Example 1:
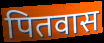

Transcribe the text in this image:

पितवास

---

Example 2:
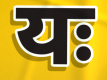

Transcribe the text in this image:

यः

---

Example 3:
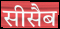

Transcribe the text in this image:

सीसैब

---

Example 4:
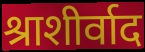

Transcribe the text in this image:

श्राशीर्वाद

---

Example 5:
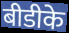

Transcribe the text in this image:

बीडीके